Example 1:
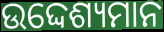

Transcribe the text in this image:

ଉଦ୍ଦେଶ୍ୟମାନ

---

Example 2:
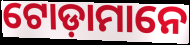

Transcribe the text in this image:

ଟୋଡ଼ାମାନେ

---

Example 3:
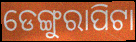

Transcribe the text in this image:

ଡେଙ୍ଗୁରାପିଟା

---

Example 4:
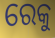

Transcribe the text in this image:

ରେକୁ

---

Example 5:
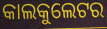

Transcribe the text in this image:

କାଲକୁଲେଟର